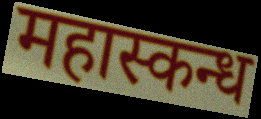
महास्कन्ध